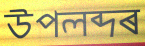
উপলব্দৰ